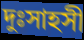
দুঃসাহসী